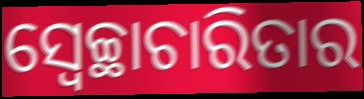
ସ୍ୱେଚ୍ଛାଚାରିତାର